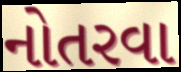
નોતરવા